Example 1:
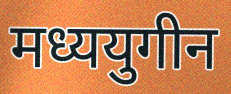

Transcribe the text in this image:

मध्ययुगीन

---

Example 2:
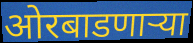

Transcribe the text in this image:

ओरबाडणाऱ्या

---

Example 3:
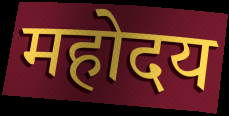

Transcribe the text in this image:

महोदय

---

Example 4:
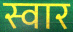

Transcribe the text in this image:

स्वार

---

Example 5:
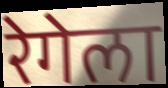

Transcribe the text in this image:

रेगेला